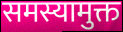
समस्यामुक्त